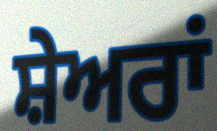
ਸ਼ੇਅਰਾਂ